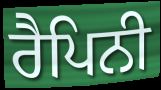
ਰੈਪਿਨੀ